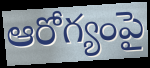
ఆరోగ్యంపై